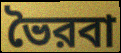
ভৈরবা